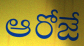
ఆరోజే